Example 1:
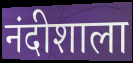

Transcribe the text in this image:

नंदीशाला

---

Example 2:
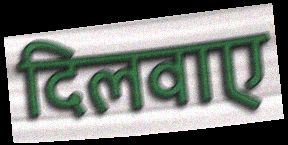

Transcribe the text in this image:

दिलवाए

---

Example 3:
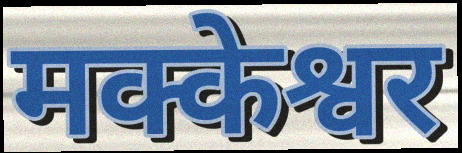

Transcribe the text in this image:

मक्केश्वर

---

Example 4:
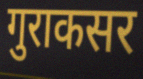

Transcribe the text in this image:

गुराकसर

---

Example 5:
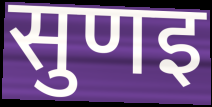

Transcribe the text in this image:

सुणइ